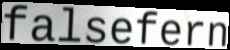
falsefern